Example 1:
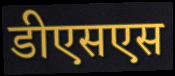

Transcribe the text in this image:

डीएसएस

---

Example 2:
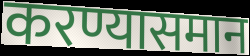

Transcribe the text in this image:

करण्यासमान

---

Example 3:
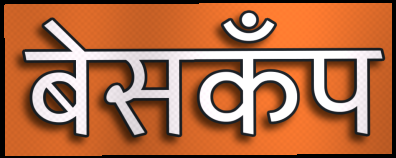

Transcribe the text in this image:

बेसकँप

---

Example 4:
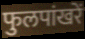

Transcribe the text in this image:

फुलपांखरें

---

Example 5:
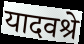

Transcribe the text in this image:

यादवश्रे